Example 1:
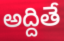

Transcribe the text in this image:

అద్దితే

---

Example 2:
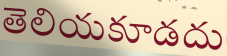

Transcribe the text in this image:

తెలియకూడదు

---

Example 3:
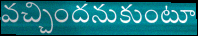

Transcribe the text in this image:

వచ్చిందనుకుంటూ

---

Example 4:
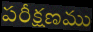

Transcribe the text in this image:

పరీక్షణము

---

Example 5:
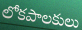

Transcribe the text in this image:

లోకపాలకులు